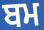
ਬਮ